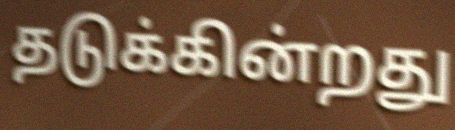
தடுக்கின்றது